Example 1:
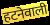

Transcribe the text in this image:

हटनेवाली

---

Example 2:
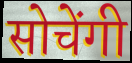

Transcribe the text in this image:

सोचेंगी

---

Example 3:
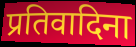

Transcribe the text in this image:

प्रतिवादिना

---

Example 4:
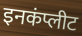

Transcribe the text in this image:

इनकंप्लीट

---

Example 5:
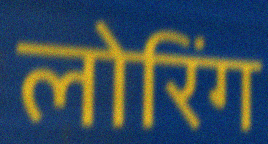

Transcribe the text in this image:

लोरिंग